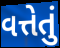
વત્તેતું